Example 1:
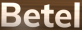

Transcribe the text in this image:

Betel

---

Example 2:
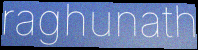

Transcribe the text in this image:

raghunath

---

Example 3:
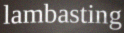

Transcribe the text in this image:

lambasting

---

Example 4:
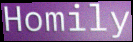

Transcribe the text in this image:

Homily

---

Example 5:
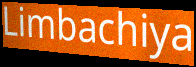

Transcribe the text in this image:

Limbachiya